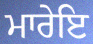
ਮਾਰੇਇ